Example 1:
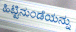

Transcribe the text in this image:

ಹಿಟ್ಟಿನುಂಡೆಯನ್ನು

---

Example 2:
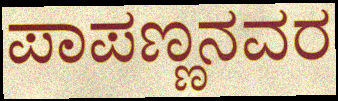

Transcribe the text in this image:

ಪಾಪಣ್ಣನವರ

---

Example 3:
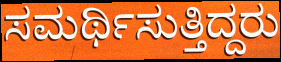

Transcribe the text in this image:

ಸಮರ್ಥಿಸುತ್ತಿದ್ದರು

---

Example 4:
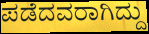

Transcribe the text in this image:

ಪಡೆದವರಾಗಿದ್ದು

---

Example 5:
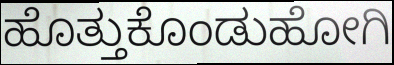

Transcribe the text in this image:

ಹೊತ್ತುಕೊಂಡುಹೋಗಿ